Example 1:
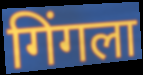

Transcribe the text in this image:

गिंगला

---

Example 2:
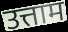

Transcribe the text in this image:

उत्ताम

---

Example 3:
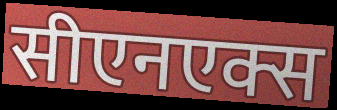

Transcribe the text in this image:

सीएनएक्स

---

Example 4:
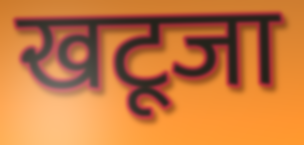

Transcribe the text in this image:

खटूजा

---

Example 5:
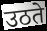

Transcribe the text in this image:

उठते